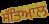
ਸੱਤਿਆਲ